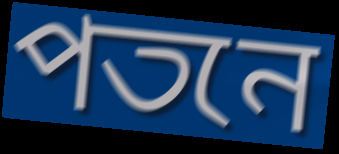
পতনে